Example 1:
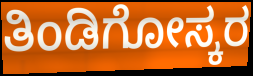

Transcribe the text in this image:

ತಿಂಡಿಗೋಸ್ಕರ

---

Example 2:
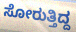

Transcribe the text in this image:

ಸೋರುತ್ತಿದ್ದ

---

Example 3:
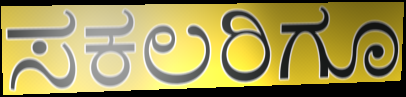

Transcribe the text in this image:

ಸಕಲರಿಗೂ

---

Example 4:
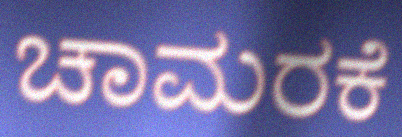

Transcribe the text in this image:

ಚಾಮರಕೆ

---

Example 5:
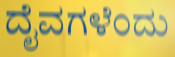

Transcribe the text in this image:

ದೈವಗಳೆಂದು